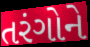
તરંગોને